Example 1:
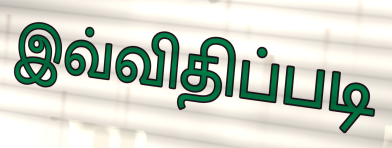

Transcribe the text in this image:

இவ்விதிப்படி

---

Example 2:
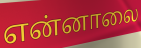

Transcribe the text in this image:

என்னாலை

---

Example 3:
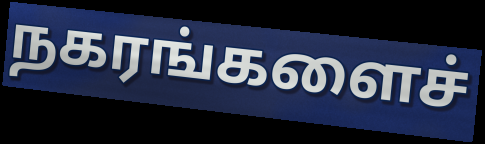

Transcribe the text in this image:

நகரங்களைச்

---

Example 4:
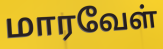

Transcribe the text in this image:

மாரவேள்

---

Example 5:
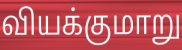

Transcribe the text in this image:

வியக்குமாறு